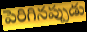
పెరిగినప్పుడు